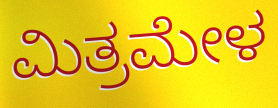
ಮಿತ್ರಮೇಳ